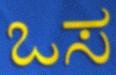
ಒಸ